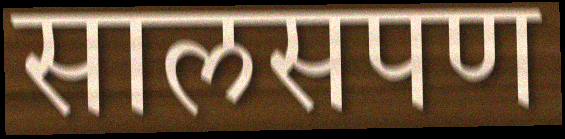
सालसपण